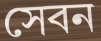
সেবন